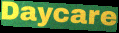
Daycare